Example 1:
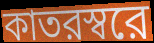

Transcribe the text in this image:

কাতরস্বরে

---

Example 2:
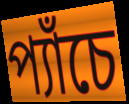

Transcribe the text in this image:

প্যাঁচে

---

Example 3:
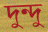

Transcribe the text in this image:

দুন্দু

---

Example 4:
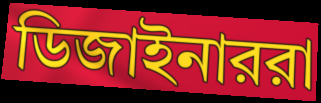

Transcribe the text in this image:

ডিজাইনাররা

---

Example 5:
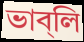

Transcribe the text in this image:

ভাব্‌লি